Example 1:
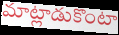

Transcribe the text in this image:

మాట్లాడుకొంటా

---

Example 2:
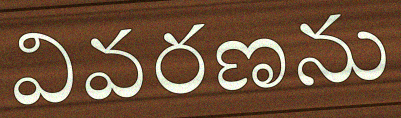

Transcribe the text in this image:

వివరణను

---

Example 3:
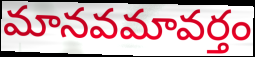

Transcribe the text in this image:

మానవమావర్తం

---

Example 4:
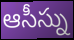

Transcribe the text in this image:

ఆసీస్ను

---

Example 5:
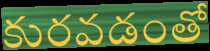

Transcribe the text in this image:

కురవడంతో